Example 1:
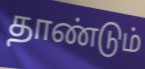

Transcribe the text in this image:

தாண்டும்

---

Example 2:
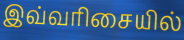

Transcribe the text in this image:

இவ்வரிசையில்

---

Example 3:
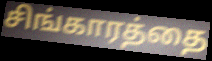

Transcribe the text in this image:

சிங்காரத்தை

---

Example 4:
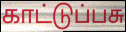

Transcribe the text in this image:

காட்டுப்பசு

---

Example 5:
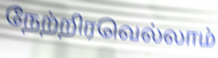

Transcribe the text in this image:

நேற்றிரவெல்லாம்